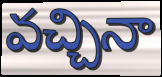
వచ్చినా